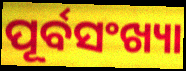
ପୂର୍ବସଂଖ୍ୟା